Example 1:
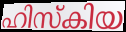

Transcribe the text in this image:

ഹിസ്കിയ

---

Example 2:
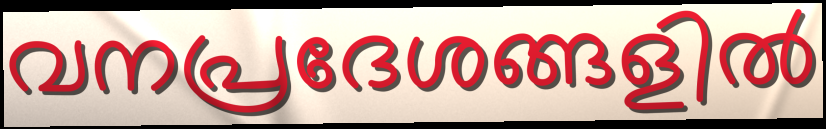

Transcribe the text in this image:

വനപ്രദേശങ്ങളിൽ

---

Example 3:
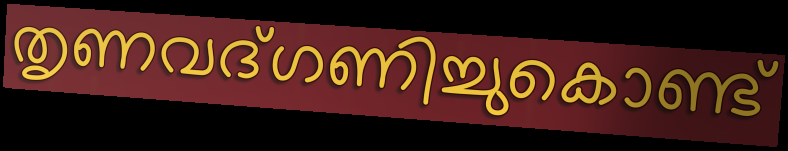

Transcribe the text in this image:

തൃണവദ്ഗണിച്ചുകൊണ്ട്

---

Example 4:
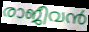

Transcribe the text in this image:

രാജീവൻ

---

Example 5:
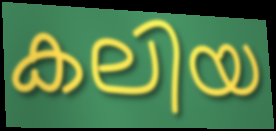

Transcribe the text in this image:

കലിയ